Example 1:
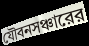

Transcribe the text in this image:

যৌবনসঞ্চারের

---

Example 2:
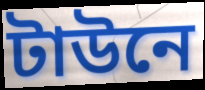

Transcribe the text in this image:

টাউনে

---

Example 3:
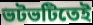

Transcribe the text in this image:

ভটভটিতেই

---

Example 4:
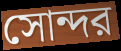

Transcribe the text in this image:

সোন্দর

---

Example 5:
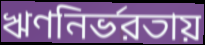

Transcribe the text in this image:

ঋণনির্ভরতায়